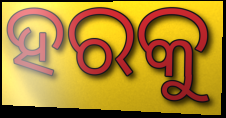
ହରକୁ